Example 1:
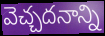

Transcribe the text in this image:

వెచ్చదనాన్ని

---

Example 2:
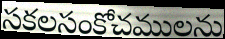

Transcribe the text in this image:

సకలసంకోచములను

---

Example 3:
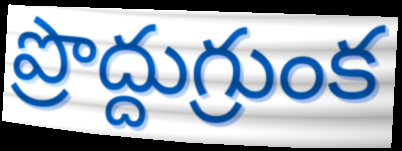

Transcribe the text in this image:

ప్రొద్దుగ్రుంక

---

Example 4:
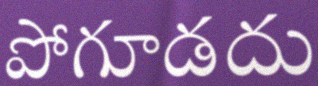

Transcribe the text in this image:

పోగూడదు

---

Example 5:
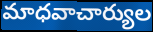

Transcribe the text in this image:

మాధవాచార్యుల